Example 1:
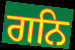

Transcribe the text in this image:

ਗਨਿ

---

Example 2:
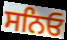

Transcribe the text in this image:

ਸਨਿਓ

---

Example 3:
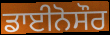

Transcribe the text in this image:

ਡਾਈਨੋਸੌਰ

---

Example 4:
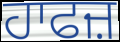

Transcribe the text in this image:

ਹਾਫਜ਼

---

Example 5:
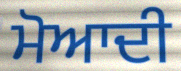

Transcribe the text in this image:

ਮੋਆਦੀ